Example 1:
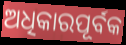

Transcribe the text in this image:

ଅଧିକାରପୂର୍ବକ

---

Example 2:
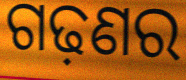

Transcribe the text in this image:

ଗଢ଼ଣର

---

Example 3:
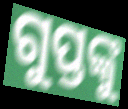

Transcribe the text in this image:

ଗୁପ୍ତଙ୍କୁ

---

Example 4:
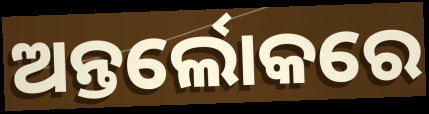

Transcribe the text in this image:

ଅନ୍ତର୍ଲୋକରେ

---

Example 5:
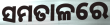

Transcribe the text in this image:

ସମତାଳରେ